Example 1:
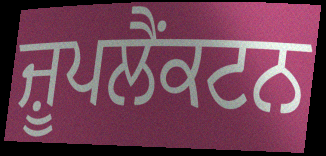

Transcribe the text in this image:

ਜ਼ੂਪਲੈਂਕਟਨ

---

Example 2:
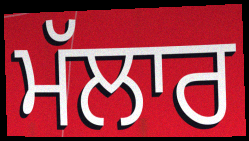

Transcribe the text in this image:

ਮੱਲਾਰ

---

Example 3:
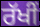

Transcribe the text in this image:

ਰੱਖੀਂ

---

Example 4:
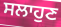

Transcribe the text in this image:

ਸਲਾਹੁਣ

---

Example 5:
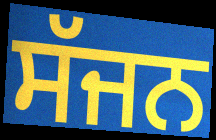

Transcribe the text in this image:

ਸੱਜਨ